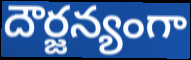
దౌర్జన్యంగా